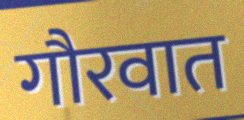
गौरवात